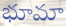
భూమా